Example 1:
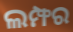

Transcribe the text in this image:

ଲମ୍ଫର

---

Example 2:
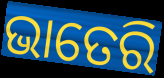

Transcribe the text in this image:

ଭାତେରି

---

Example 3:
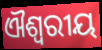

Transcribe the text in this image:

ଐଶ୍ୱରୀୟ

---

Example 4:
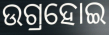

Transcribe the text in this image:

ଉଗ୍ରହୋଇ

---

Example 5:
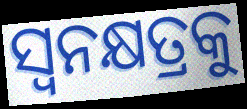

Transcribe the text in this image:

ସ୍ୱନକ୍ଷତ୍ରକୁ